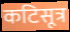
कटिसूत्र